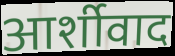
आर्शीवाद